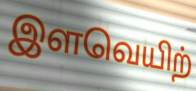
இளவெயிற்